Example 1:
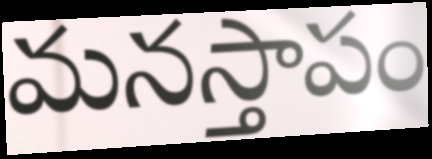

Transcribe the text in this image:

మనస్తాపం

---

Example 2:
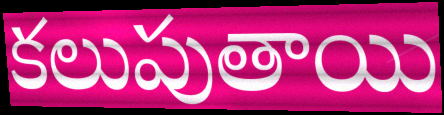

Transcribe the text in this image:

కలుపుతాయి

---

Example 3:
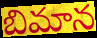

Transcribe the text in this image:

బిమాన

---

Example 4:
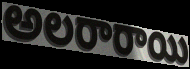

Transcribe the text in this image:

అలరారాయి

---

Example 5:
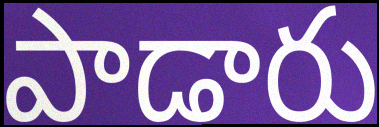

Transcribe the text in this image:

పాడారు